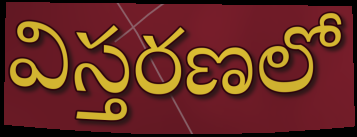
విస్తరణలో